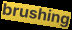
brushing